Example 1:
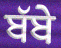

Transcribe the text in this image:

ਬੱਬੇ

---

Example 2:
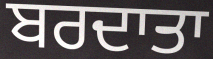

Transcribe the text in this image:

ਬਰਦਾਤਾ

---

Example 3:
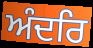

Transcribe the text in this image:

ਅੰਦਰਿ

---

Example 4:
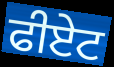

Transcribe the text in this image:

ਫੀਏਟ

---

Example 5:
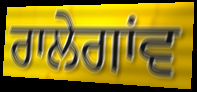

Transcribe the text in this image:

ਰਾਲੇਗਾਂਵ